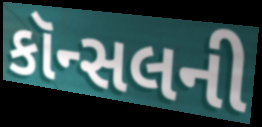
કૉન્સલની